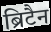
ब्रिटैन